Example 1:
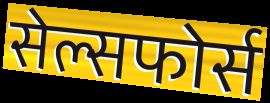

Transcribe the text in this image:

सेल्सफोर्स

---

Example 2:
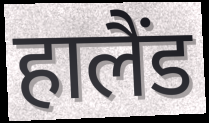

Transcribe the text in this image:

हालैंड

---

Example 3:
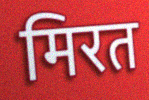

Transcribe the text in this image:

मिरत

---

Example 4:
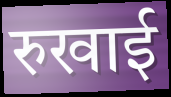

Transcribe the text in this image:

रुखाई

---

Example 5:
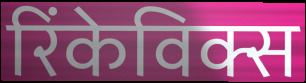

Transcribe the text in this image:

रिंकेविक्स